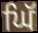
ਘਿੱ